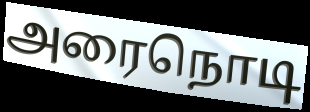
அரைநொடி